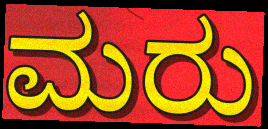
ಮರು